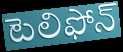
టెలిఫోన్